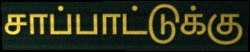
சாப்பாட்டுக்கு